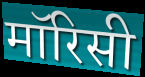
मॉरिसी